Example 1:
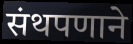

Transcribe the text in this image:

संथपणाने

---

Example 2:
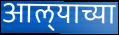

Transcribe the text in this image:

आल्याच्या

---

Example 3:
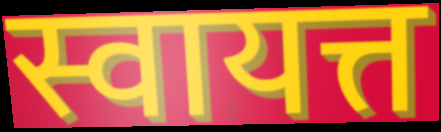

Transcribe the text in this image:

स्वायत्त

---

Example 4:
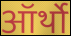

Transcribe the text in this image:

ऑर्थो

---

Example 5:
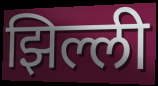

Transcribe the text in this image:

झिल्ली